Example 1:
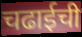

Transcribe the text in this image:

चढाईची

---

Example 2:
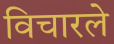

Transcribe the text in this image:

विचारले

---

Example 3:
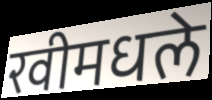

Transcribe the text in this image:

रवीमधले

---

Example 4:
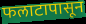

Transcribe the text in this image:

फलाटापासून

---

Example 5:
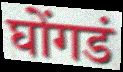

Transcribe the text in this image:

घोंगडं